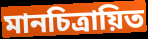
মানচিত্রায়িত